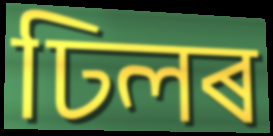
ঢিলৰ